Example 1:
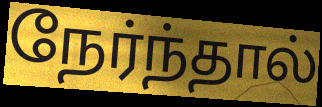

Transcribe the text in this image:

நேர்ந்தால்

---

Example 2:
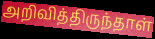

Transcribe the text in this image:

அறிவித்திருந்தாள்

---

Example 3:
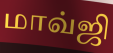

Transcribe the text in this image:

மாவ்ஜி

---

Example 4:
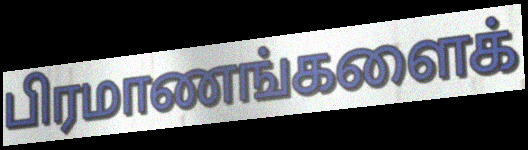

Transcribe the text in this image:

பிரமாணங்களைக்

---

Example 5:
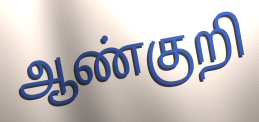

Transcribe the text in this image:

ஆண்குறி